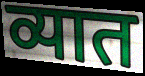
व्यात